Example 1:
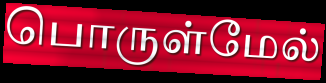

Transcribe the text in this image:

பொருள்மேல்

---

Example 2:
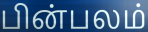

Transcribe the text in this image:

பின்பலம்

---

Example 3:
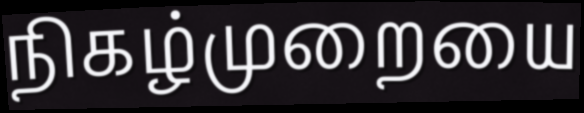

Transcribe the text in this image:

நிகழ்முறையை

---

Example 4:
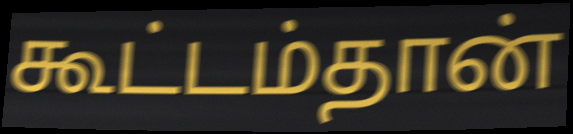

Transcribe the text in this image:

கூட்டம்தான்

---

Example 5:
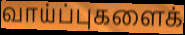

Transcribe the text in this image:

வாய்ப்புகளைக்